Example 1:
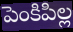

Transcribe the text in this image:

పెంకిపిల్ల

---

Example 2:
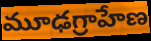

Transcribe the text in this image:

మూఢగ్రాహేణ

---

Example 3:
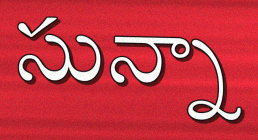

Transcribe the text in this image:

సున్నా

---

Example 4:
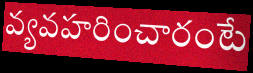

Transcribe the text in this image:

వ్యవహరించారంటే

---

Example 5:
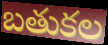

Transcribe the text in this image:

బతుకల